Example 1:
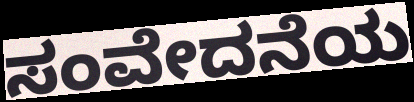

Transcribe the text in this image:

ಸಂವೇದನೆಯ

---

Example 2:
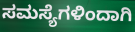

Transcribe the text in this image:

ಸಮಸ್ಯೆಗಳಿಂದಾಗಿ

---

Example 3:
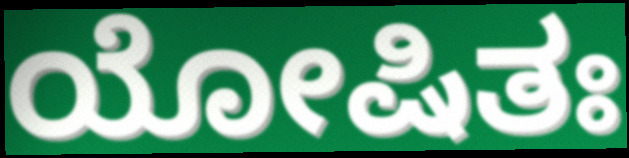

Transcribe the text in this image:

ಯೋಷಿತಃ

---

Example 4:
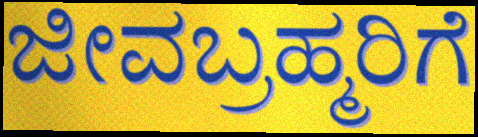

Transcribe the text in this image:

ಜೀವಬ್ರಹ್ಮರಿಗೆ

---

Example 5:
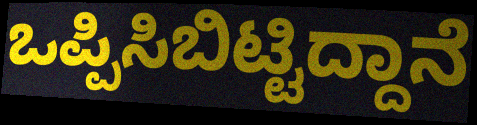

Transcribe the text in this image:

ಒಪ್ಪಿಸಿಬಿಟ್ಟಿದ್ದಾನೆ